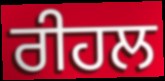
ਰੀਹਲ